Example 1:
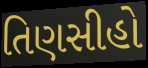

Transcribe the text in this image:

તિણસીહો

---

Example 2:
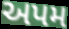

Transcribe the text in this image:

અપમ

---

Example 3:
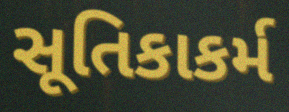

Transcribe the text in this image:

સૂતિકાકર્મ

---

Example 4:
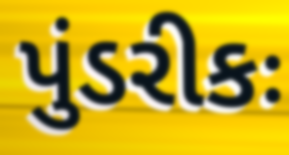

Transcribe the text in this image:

પુંડરીકઃ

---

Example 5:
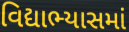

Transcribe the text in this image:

વિદ્યાભ્યાસમાં